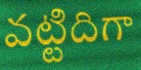
వట్టిదిగా